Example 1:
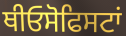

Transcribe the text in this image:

ਥੀਓਸੋਫਿਸਟਾਂ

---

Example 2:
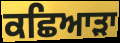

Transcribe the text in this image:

ਕਛਿਆੜਾ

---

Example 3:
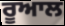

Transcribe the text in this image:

ਰੂਆਲ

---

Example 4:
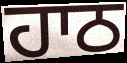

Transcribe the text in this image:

ਹਾਠ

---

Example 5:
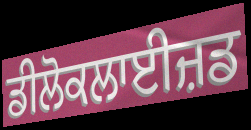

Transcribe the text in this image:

ਡੀਲੋਕਲਾਈਜ਼ਡ